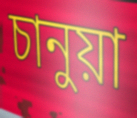
চানুয়া